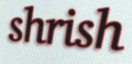
shrish